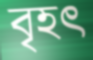
বৃহৎ